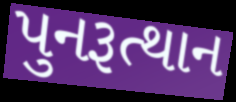
પુનરૂત્થાન